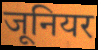
जूनियर